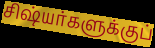
சிஷ்யர்களுக்குப்